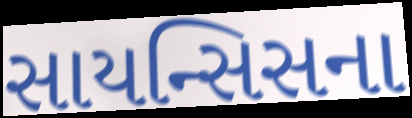
સાયન્સિસના